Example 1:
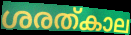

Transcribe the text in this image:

ശരത്കാല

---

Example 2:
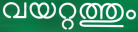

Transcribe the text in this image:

വയറ്റത്തും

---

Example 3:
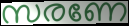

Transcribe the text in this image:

സരണേ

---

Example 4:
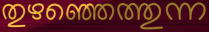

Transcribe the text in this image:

തുഴഞ്ഞെത്തുന്ന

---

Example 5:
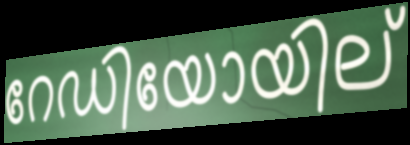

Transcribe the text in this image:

റേഡിയോയില്